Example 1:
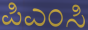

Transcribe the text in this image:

ಪಿಎಂಸಿ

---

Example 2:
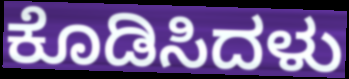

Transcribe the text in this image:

ಕೊಡಿಸಿದಳು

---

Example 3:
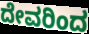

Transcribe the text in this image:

ದೇವರಿಂದ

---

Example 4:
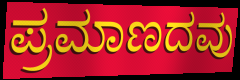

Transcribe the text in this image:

ಪ್ರಮಾಣದವು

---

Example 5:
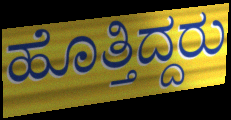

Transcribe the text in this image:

ಹೊತ್ತಿದ್ದರು